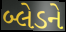
બ્લેડને